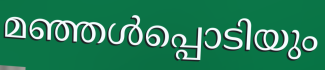
മഞ്ഞൾപ്പൊടിയും